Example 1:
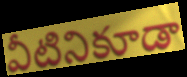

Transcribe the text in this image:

వీటినికూడా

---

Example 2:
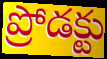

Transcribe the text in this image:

ప్రోడక్టు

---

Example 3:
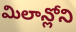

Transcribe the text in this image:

మిలాన్లోని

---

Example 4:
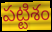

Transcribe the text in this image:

పట్టిశం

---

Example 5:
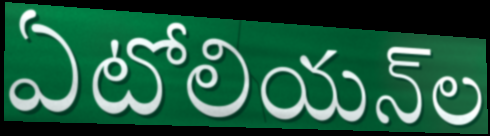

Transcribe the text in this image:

ఏటోలియన్‌ల